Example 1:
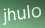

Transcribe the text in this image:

jhulo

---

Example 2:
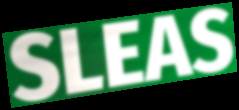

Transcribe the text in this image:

SLEAS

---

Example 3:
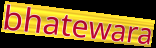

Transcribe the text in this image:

bhatewara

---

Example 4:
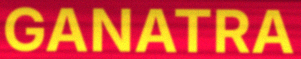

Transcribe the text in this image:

GANATRA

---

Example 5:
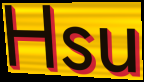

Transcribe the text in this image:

Hsu